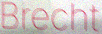
Brecht